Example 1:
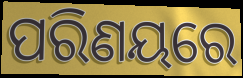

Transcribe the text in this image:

ପରିଣୟରେ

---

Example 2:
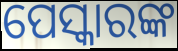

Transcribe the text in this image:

ପେସ୍କାରଙ୍କ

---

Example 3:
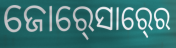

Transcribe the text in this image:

ଜୋର୍‍ସୋର୍‍ରେ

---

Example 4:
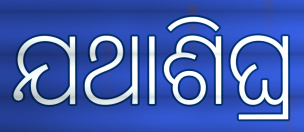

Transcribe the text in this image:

ଯଥାଶିଘ୍ର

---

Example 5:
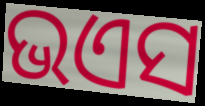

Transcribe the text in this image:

ଭଏସ